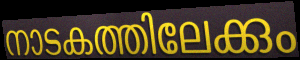
നാടകത്തിലേക്കും